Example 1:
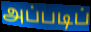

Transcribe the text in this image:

அப்படிப்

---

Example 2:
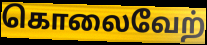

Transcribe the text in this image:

கொலைவேற்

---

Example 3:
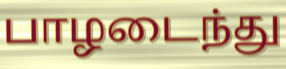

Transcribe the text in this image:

பாழடைந்து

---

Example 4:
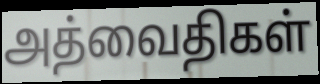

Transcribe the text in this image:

அத்வைதிகள்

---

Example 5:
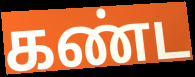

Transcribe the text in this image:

கண்ட